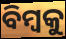
ବିମ୍ବକୁ